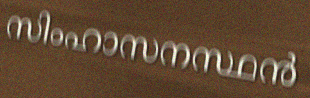
സിംഹാസനസ്ഥൻ